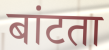
बांटता